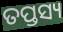
ତପ୍ତସ୍ୟ